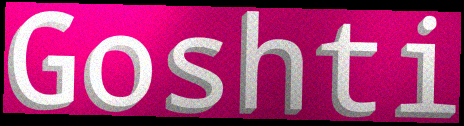
Goshti